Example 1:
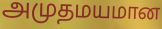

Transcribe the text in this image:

அமுதமயமான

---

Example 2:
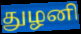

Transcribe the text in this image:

துழனி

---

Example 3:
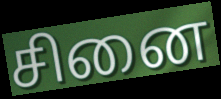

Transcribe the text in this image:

சினை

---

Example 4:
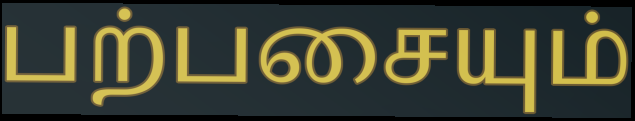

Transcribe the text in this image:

பற்பசையும்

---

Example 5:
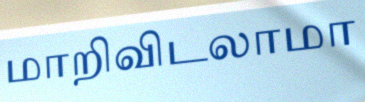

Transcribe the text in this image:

மாறிவிடலாமா